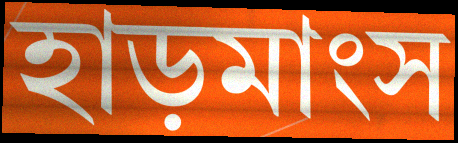
হাড়মাংস